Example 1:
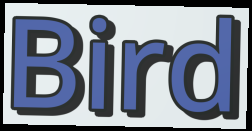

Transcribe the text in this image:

Bird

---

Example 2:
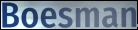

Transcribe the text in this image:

Boesman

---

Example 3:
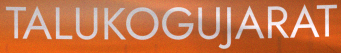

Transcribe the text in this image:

TALUKOGUJARAT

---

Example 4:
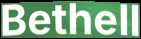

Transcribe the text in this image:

Bethell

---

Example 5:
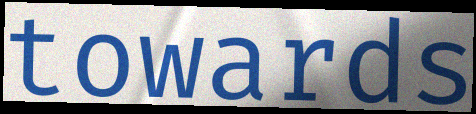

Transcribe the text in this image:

towards